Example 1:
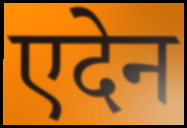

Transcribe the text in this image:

एदेन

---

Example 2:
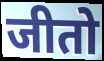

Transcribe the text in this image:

जीतो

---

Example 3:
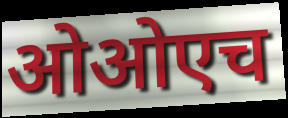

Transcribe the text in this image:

ओओएच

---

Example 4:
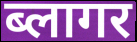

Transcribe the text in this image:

ब्लागर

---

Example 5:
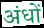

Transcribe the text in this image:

अंधों